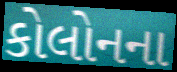
કોલોનના